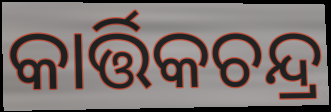
କାର୍ତ୍ତିକଚନ୍ଦ୍ର